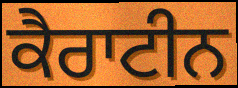
ਕੈਰਾਟੀਨ